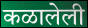
कळालेली